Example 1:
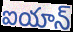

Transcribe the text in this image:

ఐయాన్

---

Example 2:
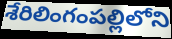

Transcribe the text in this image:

శేరిలింగంపల్లిలోని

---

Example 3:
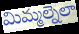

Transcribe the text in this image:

మిమ్మల్నెలా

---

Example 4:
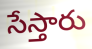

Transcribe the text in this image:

సేస్తారు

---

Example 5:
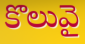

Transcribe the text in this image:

కొలువై